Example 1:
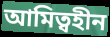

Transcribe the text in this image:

আমিত্বহীন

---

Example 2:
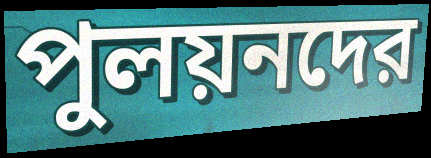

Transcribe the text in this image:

পুলয়নদের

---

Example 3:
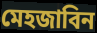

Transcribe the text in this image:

মেহজাবিন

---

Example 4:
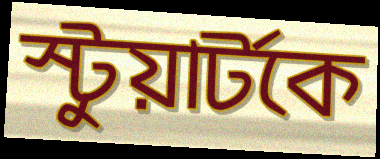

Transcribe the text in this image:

স্টুয়ার্টকে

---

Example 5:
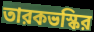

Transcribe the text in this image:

তারকভস্কির